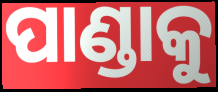
ପାଣ୍ଡାକୁ